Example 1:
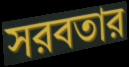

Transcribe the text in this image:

সরবতার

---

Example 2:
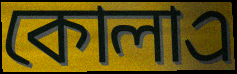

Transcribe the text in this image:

কোলাএ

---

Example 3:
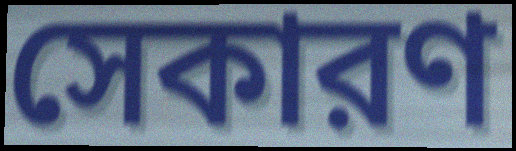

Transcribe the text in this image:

সেকারণ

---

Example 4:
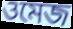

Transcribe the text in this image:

ওমেজ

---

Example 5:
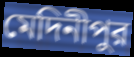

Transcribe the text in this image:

মেদিনীপুর